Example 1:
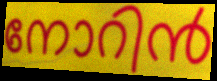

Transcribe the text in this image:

നോറിൻ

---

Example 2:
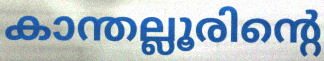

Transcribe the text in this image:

കാന്തല്ലൂരിന്റെ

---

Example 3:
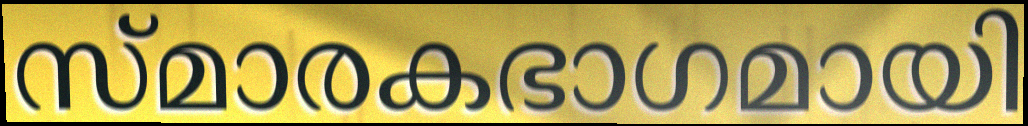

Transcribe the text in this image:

സ്മാരകഭാഗമായി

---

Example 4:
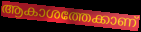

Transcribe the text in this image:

ആകാശത്തേക്കാണ്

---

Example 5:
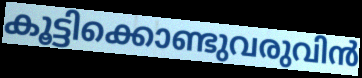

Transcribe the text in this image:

കൂട്ടിക്കൊണ്ടുവരുവിൻ